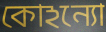
কোঽন্যো